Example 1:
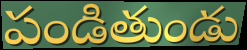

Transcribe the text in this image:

పండితుండు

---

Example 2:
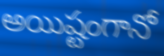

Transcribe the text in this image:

అయిష్టంగానో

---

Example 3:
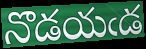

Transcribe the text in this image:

నొడయఁడ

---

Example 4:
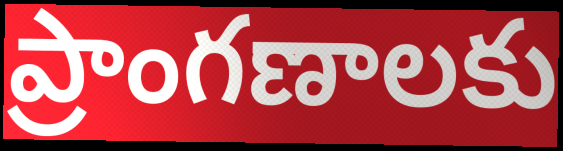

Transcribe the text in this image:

ప్రాంగణాలకు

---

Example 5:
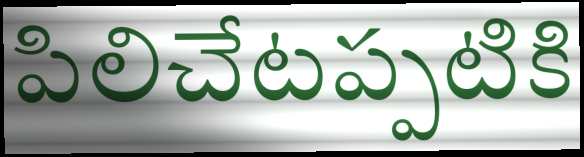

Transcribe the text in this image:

పిలిచేటప్పటికి